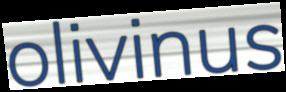
olivinus